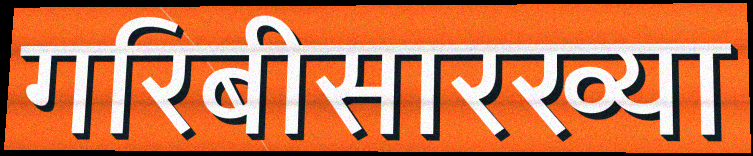
गरिबीसारख्या